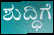
ಶುದ್ಧಿಗೆ